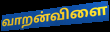
வாறன்விளை